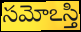
సమోఽస్తి